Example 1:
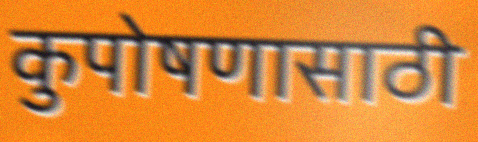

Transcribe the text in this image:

कुपोषणासाठी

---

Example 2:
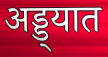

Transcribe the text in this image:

अड्ड्यात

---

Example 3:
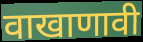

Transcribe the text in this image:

वाखाणावी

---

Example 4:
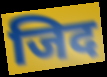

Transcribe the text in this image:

जिद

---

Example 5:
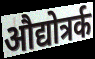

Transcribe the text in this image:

औद्योत्रर्क